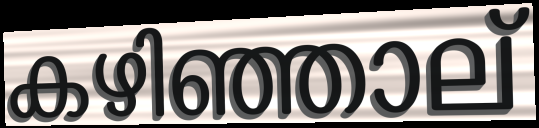
കഴിഞ്ഞാല്